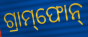
ଗ୍ରାମ୍‌ଫୋନ୍